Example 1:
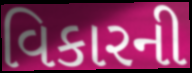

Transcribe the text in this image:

વિકારની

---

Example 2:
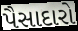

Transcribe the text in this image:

પૈસાદારો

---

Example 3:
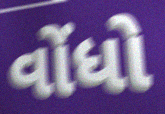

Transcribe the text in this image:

વોંધો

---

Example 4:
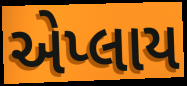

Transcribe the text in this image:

એપ્લાય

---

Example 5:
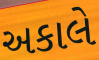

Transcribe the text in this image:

અકાલે